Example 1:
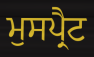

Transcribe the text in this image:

ਮੁਸਪ੍ਰੈਟ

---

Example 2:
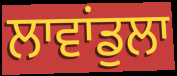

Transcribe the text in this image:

ਲਾਵਾਂਡੁਲਾ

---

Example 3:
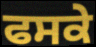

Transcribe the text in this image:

ਫਸਕੇ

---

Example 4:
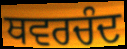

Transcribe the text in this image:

ਥਵਰਚੰਦ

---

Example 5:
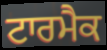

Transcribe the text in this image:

ਟਾਰਮੈਕ